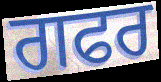
ਗਫਰ